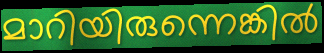
മാറിയിരുന്നെങ്കിൽ